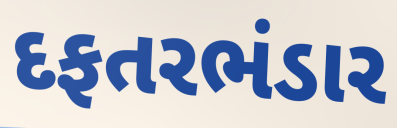
દફતરભંડાર